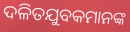
ଦଳିତଯୁବକମାନଙ୍କ